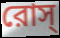
রোস্